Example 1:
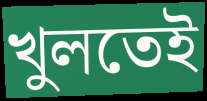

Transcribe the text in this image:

খুলতেই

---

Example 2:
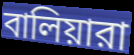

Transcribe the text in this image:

বালিয়ারা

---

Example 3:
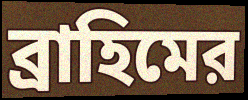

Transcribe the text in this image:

ব্রাহিমের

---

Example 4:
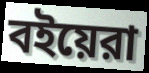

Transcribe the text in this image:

বইয়েরা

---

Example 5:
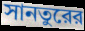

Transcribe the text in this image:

সানতুরের